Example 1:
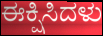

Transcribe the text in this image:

ಈಕ್ಷಿಸಿದಳು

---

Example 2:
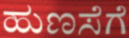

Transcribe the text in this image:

ಹುಣಸೆಗೆ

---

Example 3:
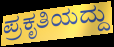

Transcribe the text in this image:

ಪ್ರಕೃತಿಯದ್ದು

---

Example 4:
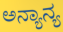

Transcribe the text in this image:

ಅನ್ಯಾನ್ಯ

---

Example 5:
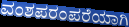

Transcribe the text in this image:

ವಂಶಪರಂಪರೆಯಾಗಿ